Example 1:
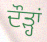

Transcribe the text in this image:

ਦੌੜ੍ਹਾਂ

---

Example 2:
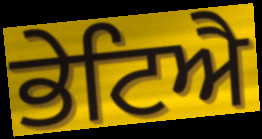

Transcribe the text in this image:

ਭੇਟਿਐ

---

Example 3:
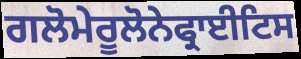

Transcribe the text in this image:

ਗਲੋਮੇਰੂਲੋਨੇਫ੍ਰਾਈਟਿਸ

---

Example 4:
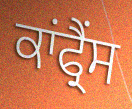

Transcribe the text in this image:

ਕਾਂਫ੍ਰੈਂਸ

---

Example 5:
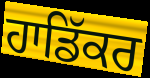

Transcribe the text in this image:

ਹਾਡਿੱਕਰ